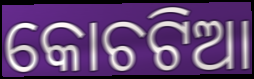
କୋଚଟିଆ